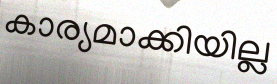
കാര്യമാക്കിയില്ല